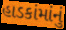
હાડકાંમાંનું